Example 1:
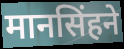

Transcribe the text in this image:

मानसिंहने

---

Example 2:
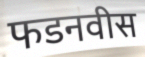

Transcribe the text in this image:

फडनवीस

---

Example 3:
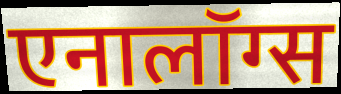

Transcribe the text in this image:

एनालॉग्स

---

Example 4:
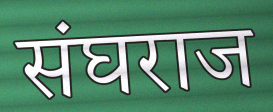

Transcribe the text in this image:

संघराज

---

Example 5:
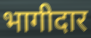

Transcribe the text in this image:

भागीदार